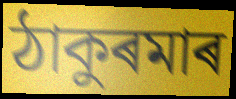
ঠাকুৰমাৰ